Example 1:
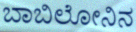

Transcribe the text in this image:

ಬಾಬಿಲೋನಿನ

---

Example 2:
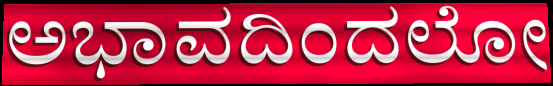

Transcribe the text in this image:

ಅಭಾವದಿಂದಲೋ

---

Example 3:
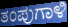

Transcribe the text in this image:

ತಂಪುಗಾಳಿ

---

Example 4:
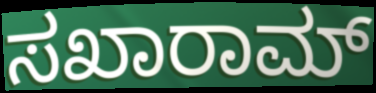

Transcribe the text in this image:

ಸಖಾರಾಮ್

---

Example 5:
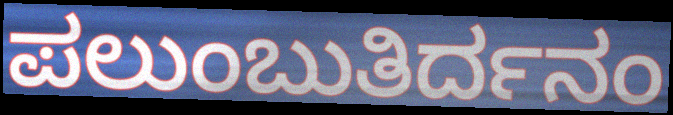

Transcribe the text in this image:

ಪಲುಂಬುತಿರ್ದನಂ